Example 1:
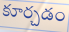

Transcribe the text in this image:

కూర్చడం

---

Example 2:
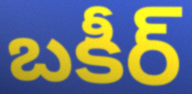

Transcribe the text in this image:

బకీర్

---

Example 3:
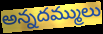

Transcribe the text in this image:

అన్నదమ్ములు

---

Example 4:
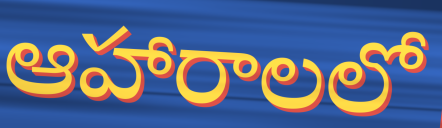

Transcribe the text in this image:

ఆహారాలలో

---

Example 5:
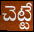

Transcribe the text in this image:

చెట్టే